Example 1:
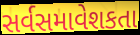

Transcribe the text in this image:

સર્વસમાવેશકતા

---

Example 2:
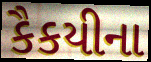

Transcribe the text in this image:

કૈકયીના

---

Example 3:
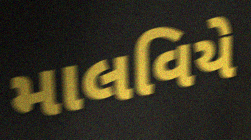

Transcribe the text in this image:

માલવિયે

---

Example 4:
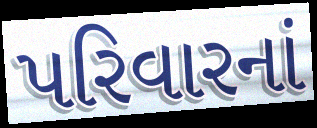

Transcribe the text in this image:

પરિવારનાં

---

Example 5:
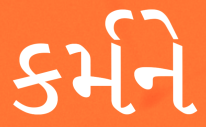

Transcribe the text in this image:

કર્મને